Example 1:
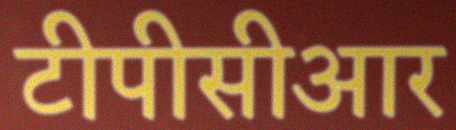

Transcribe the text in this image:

टीपीसीआर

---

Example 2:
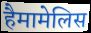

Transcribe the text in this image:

हैमामेलिस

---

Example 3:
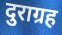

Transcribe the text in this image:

दुराग्रह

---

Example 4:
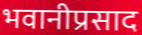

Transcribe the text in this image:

भवानीप्रसाद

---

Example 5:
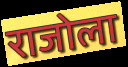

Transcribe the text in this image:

राजोला